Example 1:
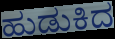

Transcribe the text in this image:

ಹುಡುಕಿದ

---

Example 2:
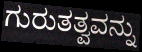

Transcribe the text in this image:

ಗುರುತತ್ವವನ್ನು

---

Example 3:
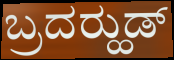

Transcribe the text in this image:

ಬ್ರದರ್‍ಹುಡ್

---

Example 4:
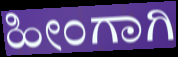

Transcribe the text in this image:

ಹೀಂಗಾಗಿ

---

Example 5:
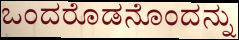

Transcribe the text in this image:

ಒಂದರೊಡನೊಂದನ್ನು